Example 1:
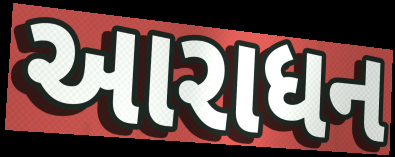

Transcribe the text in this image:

આરાધન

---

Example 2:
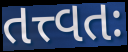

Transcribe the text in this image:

તત્ત્વતઃ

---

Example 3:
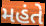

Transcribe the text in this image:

મહંતે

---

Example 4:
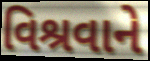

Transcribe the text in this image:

વિશ્રવાને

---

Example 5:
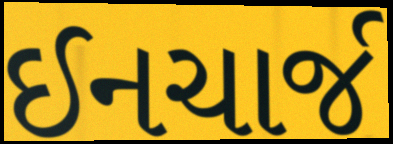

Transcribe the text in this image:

ઈનચાર્જ